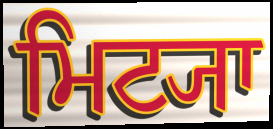
ਮਿਟ੍ਯਾ